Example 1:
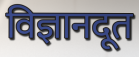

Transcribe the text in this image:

विज्ञानदूत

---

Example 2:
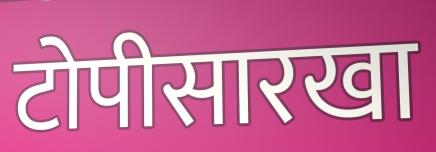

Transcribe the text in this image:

टोपीसारखा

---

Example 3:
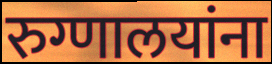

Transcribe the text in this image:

रुग्णालयांना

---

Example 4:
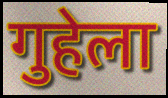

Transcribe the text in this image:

गुहेला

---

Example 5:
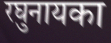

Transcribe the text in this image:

रघुनायका